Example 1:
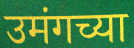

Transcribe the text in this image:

उमंगच्या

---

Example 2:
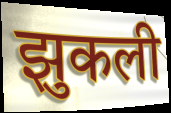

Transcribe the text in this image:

झुकली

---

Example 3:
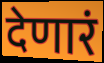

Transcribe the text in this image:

देणारं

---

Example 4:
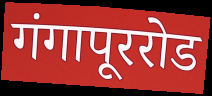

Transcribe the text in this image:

गंगापूररोड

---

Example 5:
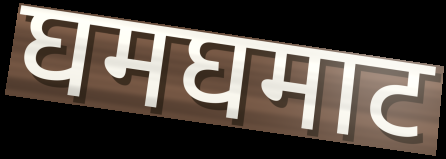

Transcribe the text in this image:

घमघमाट